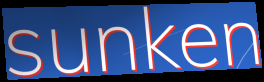
sunken